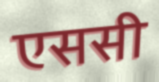
एससी